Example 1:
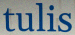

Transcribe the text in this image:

tulis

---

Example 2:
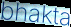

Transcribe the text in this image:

bhakta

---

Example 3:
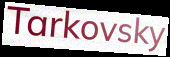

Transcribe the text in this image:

Tarkovsky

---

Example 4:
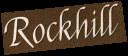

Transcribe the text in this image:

Rockhill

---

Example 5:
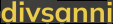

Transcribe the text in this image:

divsanni